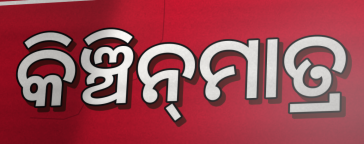
କିଞ୍ଚିନ୍‍ମାତ୍ର